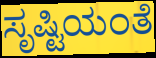
ಸೃಷ್ಟಿಯಂತೆ